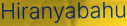
Hiranyabahu